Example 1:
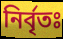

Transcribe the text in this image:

নির্বৃতঃ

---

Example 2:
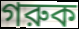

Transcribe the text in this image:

গরুক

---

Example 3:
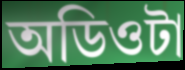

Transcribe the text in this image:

অডিওটা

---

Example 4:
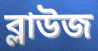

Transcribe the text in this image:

ব্লাউজ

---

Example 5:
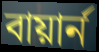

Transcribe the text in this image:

বায়ার্ন